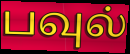
பவுல்